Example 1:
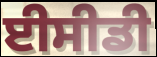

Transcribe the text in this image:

ਈਸੀਡੀ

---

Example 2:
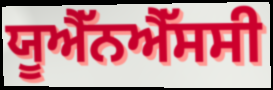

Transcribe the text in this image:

ਯੂਐੱਨਐੱਸਸੀ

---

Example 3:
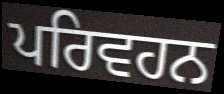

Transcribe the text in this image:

ਪਰਿਵਹਨ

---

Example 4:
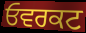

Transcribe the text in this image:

ਓਵਰਕਟ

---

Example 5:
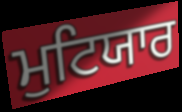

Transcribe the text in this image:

ਮੁਟਿਯਾਰ